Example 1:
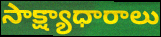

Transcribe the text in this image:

సాక్ష్యాధారాలు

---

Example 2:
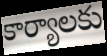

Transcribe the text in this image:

కార్యాలకు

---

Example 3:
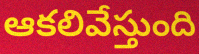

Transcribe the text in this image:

ఆకలివేస్తుంది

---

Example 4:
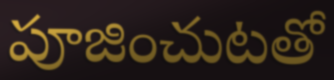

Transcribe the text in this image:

పూజించుటతో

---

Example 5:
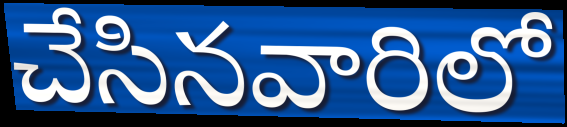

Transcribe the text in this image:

చేసినవారిలో